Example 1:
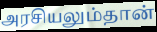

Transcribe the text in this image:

அரசியலும்தான்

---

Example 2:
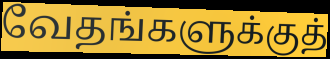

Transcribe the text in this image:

வேதங்களுக்குத்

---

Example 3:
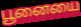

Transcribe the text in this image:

பூனையை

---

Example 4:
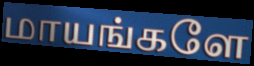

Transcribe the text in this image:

மாயங்களே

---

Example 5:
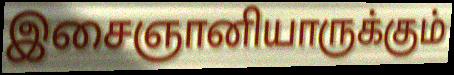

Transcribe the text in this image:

இசைஞானியாருக்கும்